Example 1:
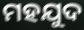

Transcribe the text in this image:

ମହଯୁଦ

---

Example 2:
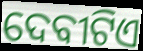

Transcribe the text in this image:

ଦେବୀଟିଏ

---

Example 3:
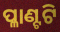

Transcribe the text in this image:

ପ୍ଳାଣ୍ଟଟି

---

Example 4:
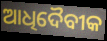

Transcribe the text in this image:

ଆଧିଦୈବୀକ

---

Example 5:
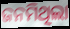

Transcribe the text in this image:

ଜନମିଥିଲା